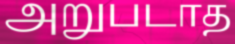
அறுபடாத